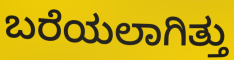
ಬರೆಯಲಾಗಿತ್ತು